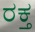
ರಕ್ತ